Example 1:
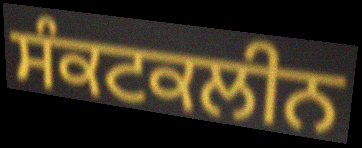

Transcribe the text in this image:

ਸੰਕਟਕਲੀਨ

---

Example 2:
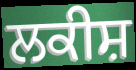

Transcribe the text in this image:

ਲਕੀਸ਼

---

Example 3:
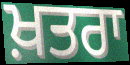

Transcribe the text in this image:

ਖ਼ਤਰਾ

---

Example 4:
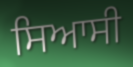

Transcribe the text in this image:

ਸਿਆਸੀ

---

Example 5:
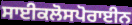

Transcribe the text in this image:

ਸਾਈਕਲੋਸਪੋਰਾਈਨ